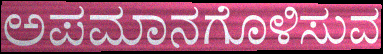
ಅಪಮಾನಗೊಳಿಸುವ